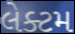
લેક્ટમ